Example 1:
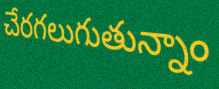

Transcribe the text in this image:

చేరగలుగుతున్నాం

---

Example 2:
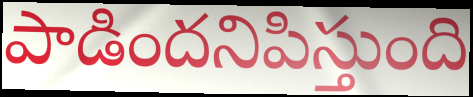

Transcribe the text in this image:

పాడిందనిపిస్తుంది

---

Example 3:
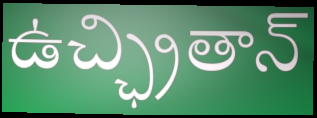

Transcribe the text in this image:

ఉచ్ఛ్రితాన్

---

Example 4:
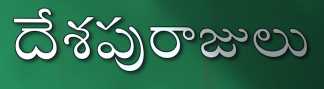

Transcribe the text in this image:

దేశపురాజులు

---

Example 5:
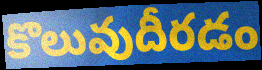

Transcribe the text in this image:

కొలువుదీరడం